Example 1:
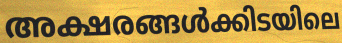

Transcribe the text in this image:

അക്ഷരങ്ങൾക്കിടയിലെ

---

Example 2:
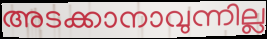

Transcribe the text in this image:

അടക്കാനാവുന്നില്ല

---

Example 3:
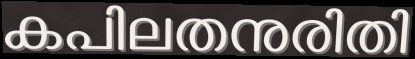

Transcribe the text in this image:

കപിലതനുരിതി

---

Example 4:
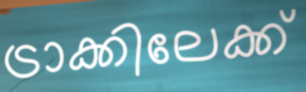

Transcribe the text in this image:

ട്രാക്കിലേക്ക്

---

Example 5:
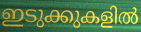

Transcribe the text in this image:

ഇടുക്കുകളിൽ